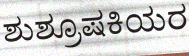
ಶುಶ್ರೂಷಕಿಯರ